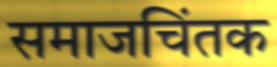
समाजचिंतक